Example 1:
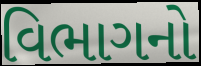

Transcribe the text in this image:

વિભાગનો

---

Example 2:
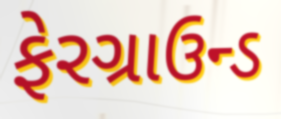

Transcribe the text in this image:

ફેરગ્રાઉન્ડ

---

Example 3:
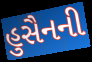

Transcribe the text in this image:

હુસૈનની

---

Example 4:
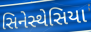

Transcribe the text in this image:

સિનેસ્થેસિયા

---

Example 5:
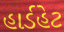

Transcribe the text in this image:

હાર્ડહેટ